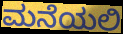
ಮನೆಯಲಿ